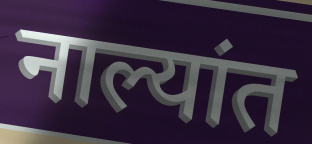
नाल्यांत